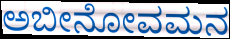
ಅಬೀನೋವಮನ